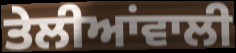
ਤੇਲੀਆਂਵਾਲੀ